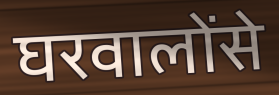
घरवालोंसे